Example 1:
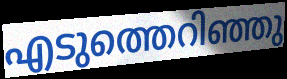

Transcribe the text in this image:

എടുത്തെറിഞ്ഞു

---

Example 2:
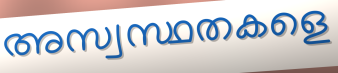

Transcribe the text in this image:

അസ്വസ്ഥതകളെ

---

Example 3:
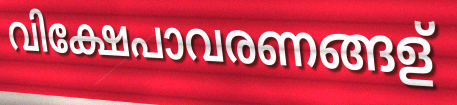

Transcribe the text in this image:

വിക്ഷേപാവരണങ്ങള്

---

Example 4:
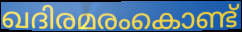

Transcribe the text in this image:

ഖദിരമരംകൊണ്ട്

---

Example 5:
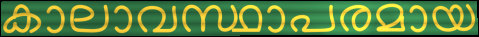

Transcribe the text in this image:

കാലാവസ്ഥാപരമായ